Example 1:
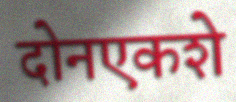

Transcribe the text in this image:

दोनएकशे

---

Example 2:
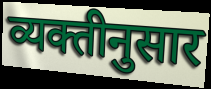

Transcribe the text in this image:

व्यक्तीनुसार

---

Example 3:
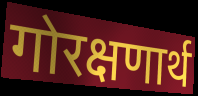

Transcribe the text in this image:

गोरक्षणार्थ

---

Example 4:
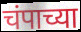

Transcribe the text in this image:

चंपाच्या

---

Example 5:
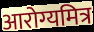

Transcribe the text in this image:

आरोग्यमित्र